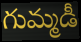
గుమ్మడీ